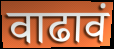
वाढावं